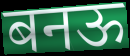
बनऊ